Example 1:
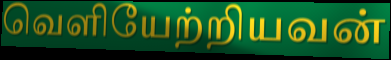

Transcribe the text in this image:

வெளியேற்றியவன்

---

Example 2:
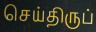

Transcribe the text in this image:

செய்திருப்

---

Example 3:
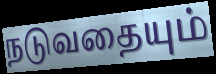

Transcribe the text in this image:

நடுவதையும்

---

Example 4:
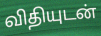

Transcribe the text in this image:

விதியுடன்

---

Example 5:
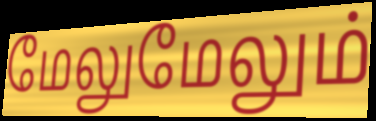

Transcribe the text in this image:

மேலுமேலும்